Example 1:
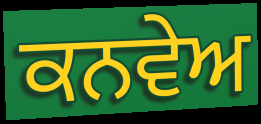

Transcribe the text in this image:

ਕਨਵੇਅ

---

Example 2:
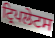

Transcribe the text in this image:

ਟ੍ਰਿਪਲੇਟਸ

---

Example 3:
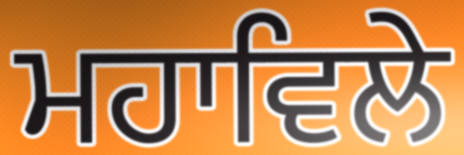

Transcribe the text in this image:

ਮਹਾਵਿਲੇ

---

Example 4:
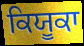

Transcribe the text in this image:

ਕਿਯੂਕਾ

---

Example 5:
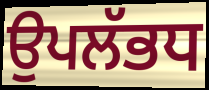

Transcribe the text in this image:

ਉਪਲੱਭਧ